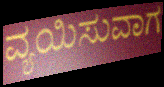
ವ್ಯಯಿಸುವಾಗ